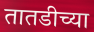
तातडीच्या